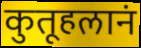
कुतूहलानं